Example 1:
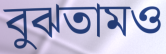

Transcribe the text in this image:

বুঝতামও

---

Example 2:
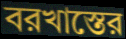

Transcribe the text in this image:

বরখাস্তের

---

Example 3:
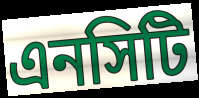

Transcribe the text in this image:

এনসিটি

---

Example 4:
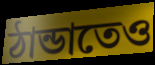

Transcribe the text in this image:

ঠান্ডাতেও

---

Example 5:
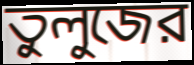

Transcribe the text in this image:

তুলুজের